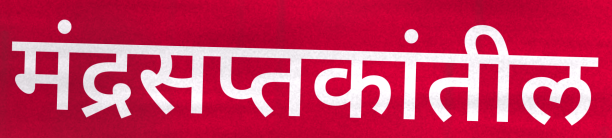
मंद्रसप्तकांतील